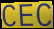
CEC